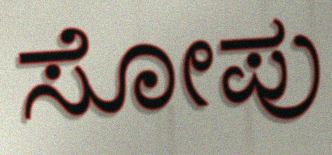
ಸೋಪು